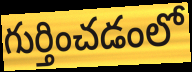
గుర్తించడంలో